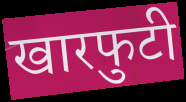
खारफुटी